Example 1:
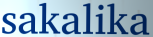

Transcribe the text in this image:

sakalika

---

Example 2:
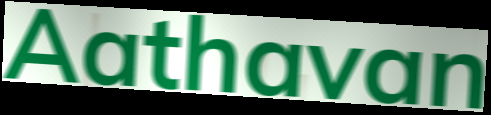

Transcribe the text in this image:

Aathavan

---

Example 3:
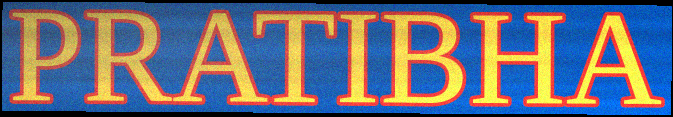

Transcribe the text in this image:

PRATIBHA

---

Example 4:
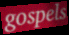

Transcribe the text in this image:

gospels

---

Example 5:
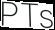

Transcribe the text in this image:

PTs